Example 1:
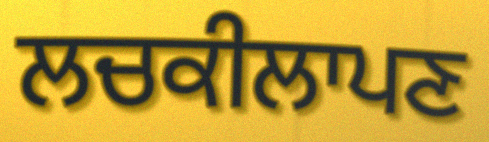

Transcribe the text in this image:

ਲਚਕੀਲਾਪਣ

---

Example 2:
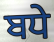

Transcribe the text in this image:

ਬਧੇ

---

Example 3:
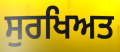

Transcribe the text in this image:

ਸੁਰਖਿਅਤ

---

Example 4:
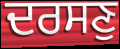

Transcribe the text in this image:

ਦਰਸਣੁ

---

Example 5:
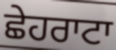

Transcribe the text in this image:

ਛੇਹਰਾਟਾ